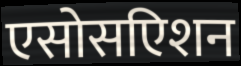
एसोसएिशन